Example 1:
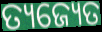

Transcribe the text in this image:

ତ୍ୟଜ୍ୟେତ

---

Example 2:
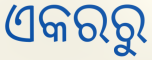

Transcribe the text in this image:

ଏକରରୁ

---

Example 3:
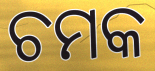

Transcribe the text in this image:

ଚମକ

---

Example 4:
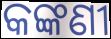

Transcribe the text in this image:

କଙ୍କଣୀ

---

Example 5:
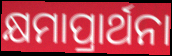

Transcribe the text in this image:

କ୍ଷମାପ୍ରାର୍ଥନା